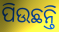
ପିଉଛନ୍ତି